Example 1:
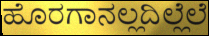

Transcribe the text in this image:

ಹೊರಗಾನಲ್ಲದಿಲ್ಲೆಲೆ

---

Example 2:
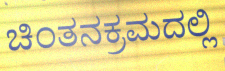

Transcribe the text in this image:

ಚಿಂತನಕ್ರಮದಲ್ಲಿ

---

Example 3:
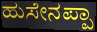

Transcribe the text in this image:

ಹುಸೇನಪ್ಪಾ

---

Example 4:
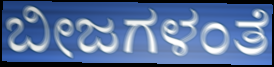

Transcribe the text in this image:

ಬೀಜಗಳಂತೆ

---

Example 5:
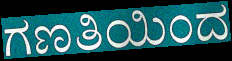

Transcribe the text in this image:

ಗಣತಿಯಿಂದ